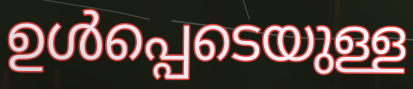
ഉൾപ്പെടെയുള്ള